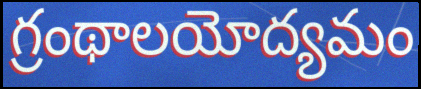
గ్రంథాలయోద్యమం